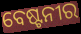
ବେଷ୍ଟନୀର